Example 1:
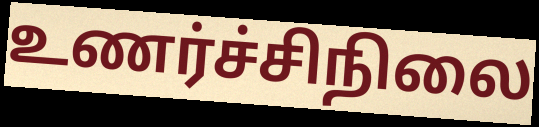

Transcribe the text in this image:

உணர்ச்சிநிலை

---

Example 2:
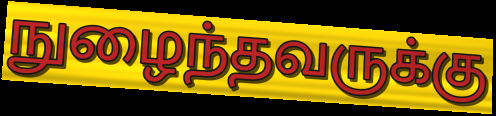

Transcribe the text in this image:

நுழைந்தவருக்கு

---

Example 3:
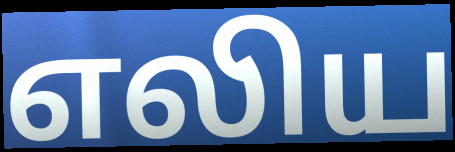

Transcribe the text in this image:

எலிய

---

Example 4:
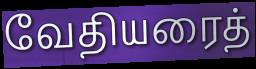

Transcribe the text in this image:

வேதியரைத்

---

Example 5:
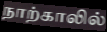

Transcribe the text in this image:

நாற்காலில்